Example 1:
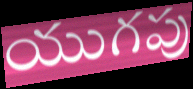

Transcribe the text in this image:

యుగపు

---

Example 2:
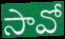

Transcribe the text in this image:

సావో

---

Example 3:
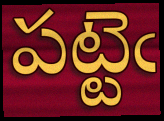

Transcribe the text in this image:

పట్టెఁ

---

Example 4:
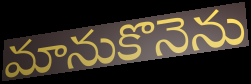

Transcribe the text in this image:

మానుకొనెను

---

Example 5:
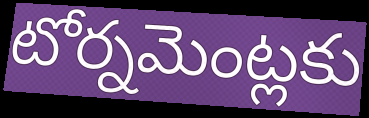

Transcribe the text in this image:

టోర్నమెంట్లకు